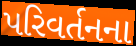
પરિવર્તનના